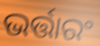
ଭର୍ତ୍ତାରଂ